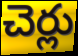
చెర్లు